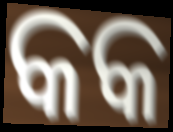
କକ